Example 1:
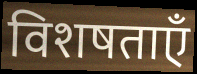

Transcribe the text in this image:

विशषताएँ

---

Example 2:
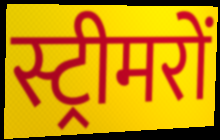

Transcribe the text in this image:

स्ट्रीमरों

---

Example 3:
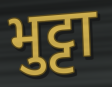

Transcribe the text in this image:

भुट्टा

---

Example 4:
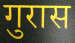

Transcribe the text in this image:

गुरास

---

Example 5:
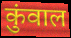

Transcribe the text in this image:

कुंवाल